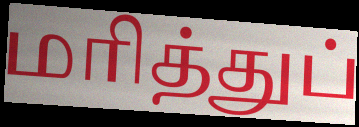
மரித்துப்